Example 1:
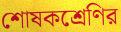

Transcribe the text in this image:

শোষকশ্রেণির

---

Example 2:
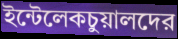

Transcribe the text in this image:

ইন্টেলেকচুয়ালদের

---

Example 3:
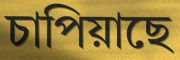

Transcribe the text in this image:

চাপিয়াছে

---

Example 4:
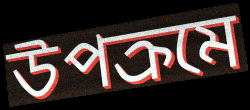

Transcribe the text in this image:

উপক্রমে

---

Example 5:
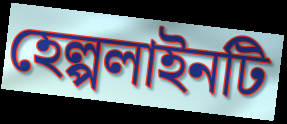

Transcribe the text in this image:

হেল্পলাইনটি